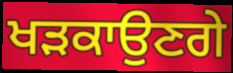
ਖੜਕਾਉਣਗੇ